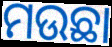
ମଉଛା